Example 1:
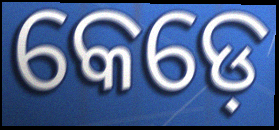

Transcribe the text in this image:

କେଡ଼େ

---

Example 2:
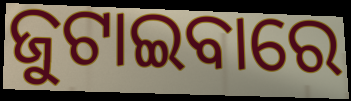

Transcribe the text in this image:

ଜୁଟାଇବାରେ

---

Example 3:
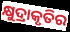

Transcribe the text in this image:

କ୍ଷୁଦ୍ରାକୃତିର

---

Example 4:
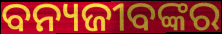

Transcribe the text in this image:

ବନ୍ୟଜୀବଙ୍କର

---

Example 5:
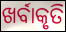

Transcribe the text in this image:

ଖର୍ବାକୃତି